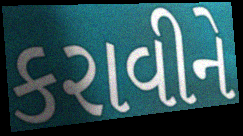
કરાવીને